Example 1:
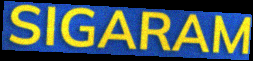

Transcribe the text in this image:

SIGARAM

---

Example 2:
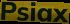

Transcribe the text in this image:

Psiax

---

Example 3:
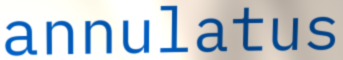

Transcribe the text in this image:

annulatus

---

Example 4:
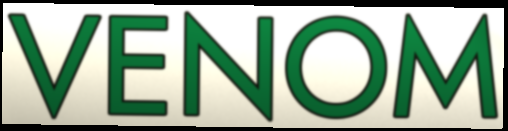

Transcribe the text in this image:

VENOM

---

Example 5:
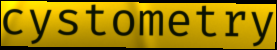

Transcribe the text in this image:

cystometry